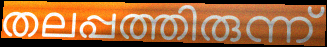
തലപ്പത്തിരുന്ന്